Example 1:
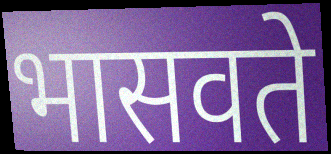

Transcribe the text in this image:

भासवते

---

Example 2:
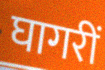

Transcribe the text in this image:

घागरीं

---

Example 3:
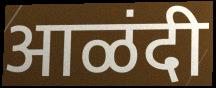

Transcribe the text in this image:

आळंदी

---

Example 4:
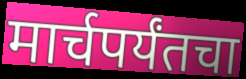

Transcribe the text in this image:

मार्चपर्यंतचा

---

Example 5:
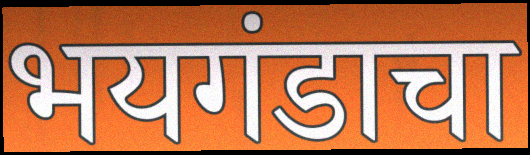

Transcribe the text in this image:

भयगंडाचा